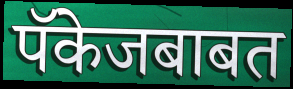
पॅकेजबाबत